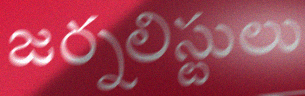
జర్నలిస్టులు